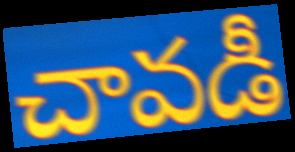
చావడీ